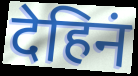
देहिनं